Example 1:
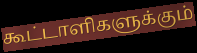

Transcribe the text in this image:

கூட்டாளிகளுக்கும்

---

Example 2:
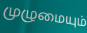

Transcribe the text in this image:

முழுமையும்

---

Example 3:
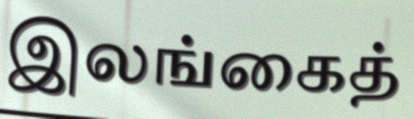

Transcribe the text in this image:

இலங்கைத்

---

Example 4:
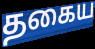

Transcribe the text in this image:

தகைய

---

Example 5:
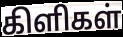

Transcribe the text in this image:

கிளிகள்